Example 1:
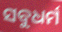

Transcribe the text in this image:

ସବୁଧର୍ମ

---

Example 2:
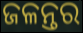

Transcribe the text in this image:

ଜଳନ୍ତର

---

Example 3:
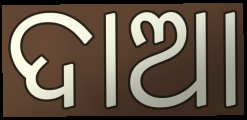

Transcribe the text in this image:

ଦାଆ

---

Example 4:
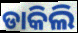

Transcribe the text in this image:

ଡାକିଲି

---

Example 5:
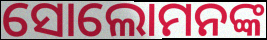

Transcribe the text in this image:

ସୋଲୋମନଙ୍କ